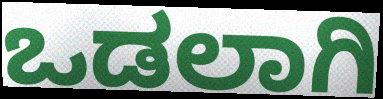
ಒಡಲಾಗಿ